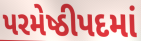
પરમેષ્ઠીપદમાં